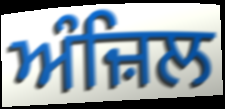
ਅੰਜ਼ਿਲ